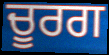
ਚੂਰਗ